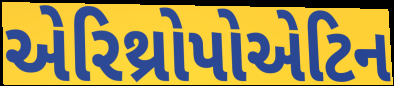
એરિથ્રોપોએટિન